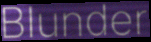
Blunder